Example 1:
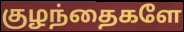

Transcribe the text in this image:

குழந்தைகளே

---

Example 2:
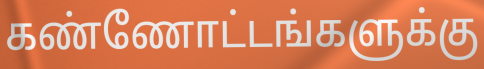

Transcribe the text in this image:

கண்ணோட்டங்களுக்கு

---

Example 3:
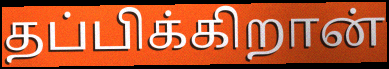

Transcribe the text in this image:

தப்பிக்கிறான்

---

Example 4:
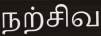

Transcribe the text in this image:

நற்சிவ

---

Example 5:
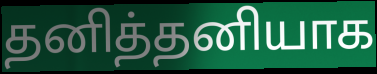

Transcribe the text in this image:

தனித்தனியாக